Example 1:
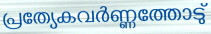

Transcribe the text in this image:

പ്രത്യേകവർണ്ണത്തോടു്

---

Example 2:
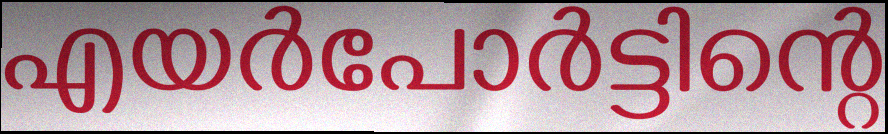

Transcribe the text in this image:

എയർപോർട്ടിന്റെ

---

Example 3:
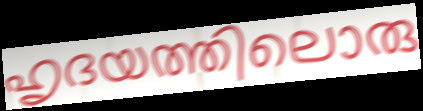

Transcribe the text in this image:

ഹൃദയത്തിലൊരു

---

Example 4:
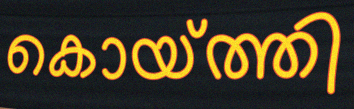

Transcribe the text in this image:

കൊയ്‌ത്തി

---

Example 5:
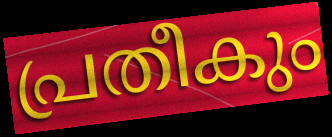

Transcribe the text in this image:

പ്രതീകും